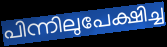
പിന്നിലുപേക്ഷിച്ച